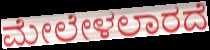
ಮೇಲೇಳಲಾರದೆ